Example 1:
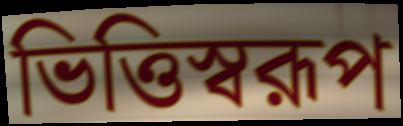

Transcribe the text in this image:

ভিত্তিস্বরূপ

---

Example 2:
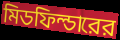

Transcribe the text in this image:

মিডফিল্ডারের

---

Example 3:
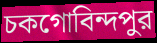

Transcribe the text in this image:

চকগোবিন্দপুর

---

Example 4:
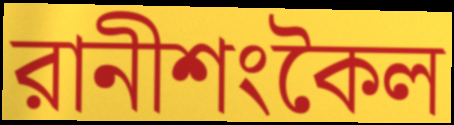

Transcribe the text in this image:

রানীশংকৈল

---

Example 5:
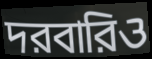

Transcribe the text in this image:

দরবারিও